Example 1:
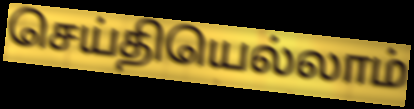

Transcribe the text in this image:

செய்தியெல்லாம்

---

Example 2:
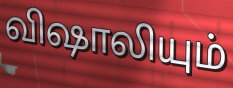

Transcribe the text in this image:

விஷாலியும்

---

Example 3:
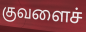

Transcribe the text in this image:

குவளைச்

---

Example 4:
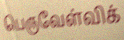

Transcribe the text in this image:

பெருவேள்விக்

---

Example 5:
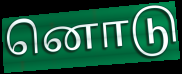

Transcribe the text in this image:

னொடு